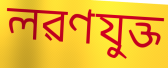
লৱণযুক্ত